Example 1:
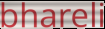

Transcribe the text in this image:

bhareli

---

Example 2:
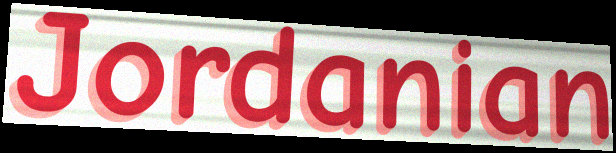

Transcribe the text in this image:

Jordanian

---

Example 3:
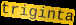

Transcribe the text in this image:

triginta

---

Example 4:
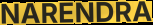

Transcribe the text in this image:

NARENDRA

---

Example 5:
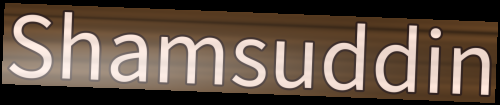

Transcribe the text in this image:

Shamsuddin